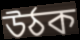
উঠক